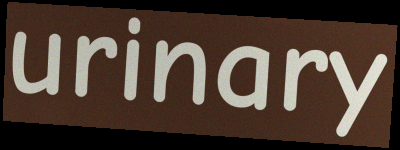
urinary